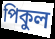
পিকুল